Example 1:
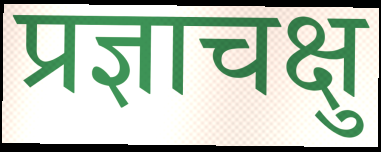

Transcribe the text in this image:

प्रज्ञाचक्षु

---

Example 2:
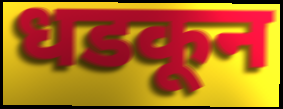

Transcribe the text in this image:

धडकून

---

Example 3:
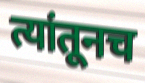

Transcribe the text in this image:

त्यांतूनच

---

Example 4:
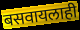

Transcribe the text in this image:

बसवायलाही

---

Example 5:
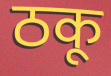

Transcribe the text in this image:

ठकू